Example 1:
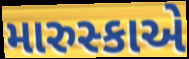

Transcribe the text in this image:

મારુસ્કાએ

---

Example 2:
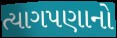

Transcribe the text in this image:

ત્યાગપણાનો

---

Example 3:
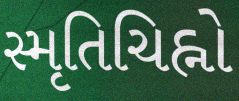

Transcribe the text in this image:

સ્મૃતિચિહ્નો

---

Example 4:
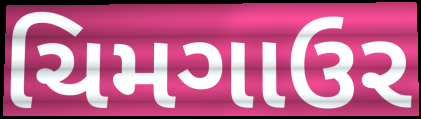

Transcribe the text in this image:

ચિમગાઉર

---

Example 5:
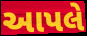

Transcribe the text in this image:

આપલે